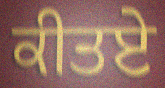
ਕੀਤਏ